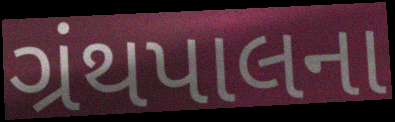
ગ્રંથપાલના